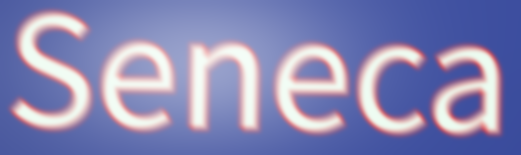
Seneca